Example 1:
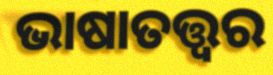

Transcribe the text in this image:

ଭାଷାତତ୍ତ୍ଵର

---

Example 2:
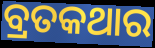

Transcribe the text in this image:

ବ୍ରତକଥାର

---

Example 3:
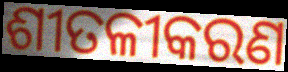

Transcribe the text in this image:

ଶୀତଳୀକରଣ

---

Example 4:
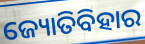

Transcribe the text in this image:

ଜ୍ୟୋତିବିହାର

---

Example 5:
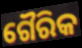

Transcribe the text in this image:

ଗୈରିକ